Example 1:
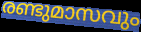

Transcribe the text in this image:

രണ്ടുമാസവും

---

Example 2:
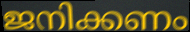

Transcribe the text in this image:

ജനിക്കണം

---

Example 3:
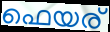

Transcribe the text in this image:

ഫെയര്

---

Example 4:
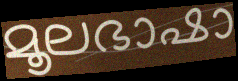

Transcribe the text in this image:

മൂലഭാഷാ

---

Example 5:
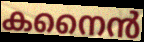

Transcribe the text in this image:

കനൈൻ